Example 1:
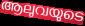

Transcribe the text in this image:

ആലുവയുടെ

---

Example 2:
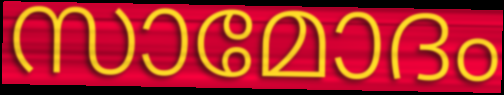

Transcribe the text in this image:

സാമോദം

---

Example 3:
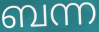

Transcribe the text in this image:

ബന്ന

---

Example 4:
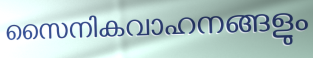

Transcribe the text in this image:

സൈനികവാഹനങ്ങളും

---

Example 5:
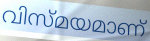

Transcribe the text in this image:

വിസ്മയമാണ്